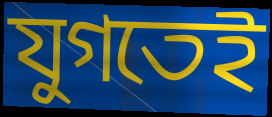
যুগতেই